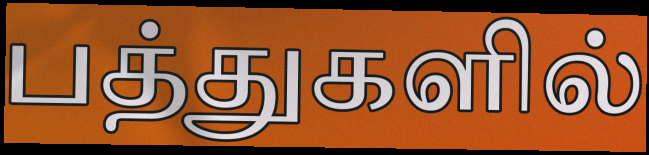
பத்துகளில்